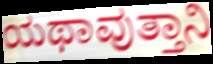
ಯಥಾವುತ್ತಾನಿ